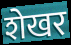
शेखर